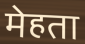
मेहता